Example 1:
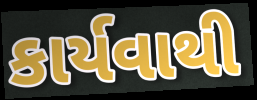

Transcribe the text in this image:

કાર્યવાથી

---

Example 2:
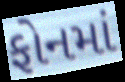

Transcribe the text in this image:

ફોનમાં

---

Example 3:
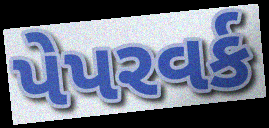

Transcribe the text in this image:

પેપરવર્ક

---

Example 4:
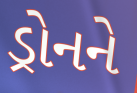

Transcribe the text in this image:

ડ્રોનને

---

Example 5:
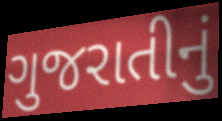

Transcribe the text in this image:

ગુજરાતીનું